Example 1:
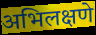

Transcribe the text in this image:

अभिलक्षणे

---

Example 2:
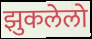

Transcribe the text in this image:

झुकलेलो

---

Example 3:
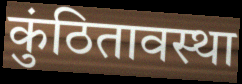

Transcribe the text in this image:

कुंठितावस्था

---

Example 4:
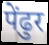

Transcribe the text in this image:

पेंढुर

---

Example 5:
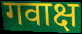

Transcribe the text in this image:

गवाक्ष